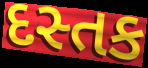
દસ્તક